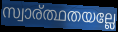
സ്വാര്ത്ഥതയല്ലേ